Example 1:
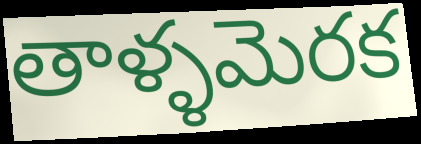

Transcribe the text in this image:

తాళ్ళమెరక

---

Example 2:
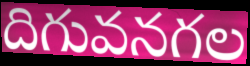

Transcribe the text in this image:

దిగువనగల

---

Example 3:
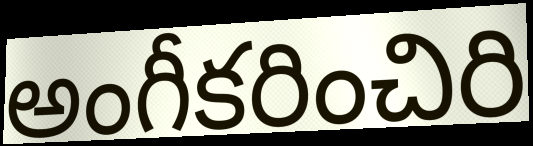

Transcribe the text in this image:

అంగీకరించిరి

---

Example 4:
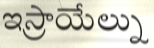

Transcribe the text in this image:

ఇస్రాయేల్ను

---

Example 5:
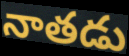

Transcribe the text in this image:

నాతడు